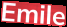
Emile